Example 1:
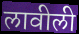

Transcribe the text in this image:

लावीली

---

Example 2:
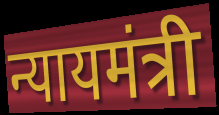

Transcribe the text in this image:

न्यायमंत्री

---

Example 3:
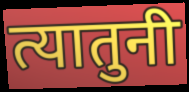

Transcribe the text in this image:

त्यातुनी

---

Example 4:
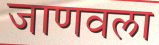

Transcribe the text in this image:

जाणवला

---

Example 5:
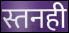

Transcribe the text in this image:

स्तनही